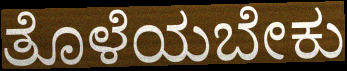
ತೊಳೆಯಬೇಕು